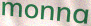
monna